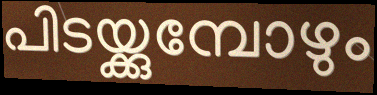
പിടയ്ക്കുമ്പോഴും